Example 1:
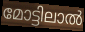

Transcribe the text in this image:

മോട്ടിലാൽ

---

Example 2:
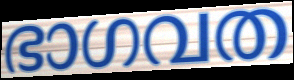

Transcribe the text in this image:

ഭാഗവത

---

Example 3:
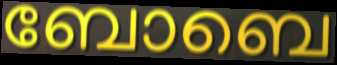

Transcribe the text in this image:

ബോബെ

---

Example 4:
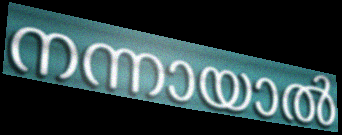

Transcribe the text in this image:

നന്നായാൽ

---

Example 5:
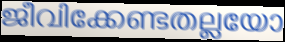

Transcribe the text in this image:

ജീവിക്കേണ്ടതല്ലയോ